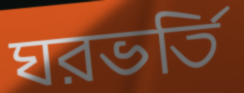
ঘরভর্তি